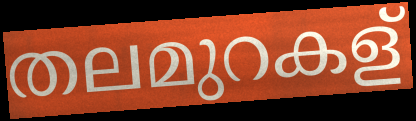
തലമുറകള്